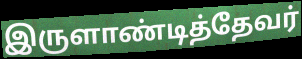
இருளாண்டித்தேவர்